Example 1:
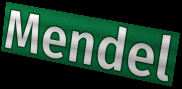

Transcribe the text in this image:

Mendel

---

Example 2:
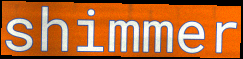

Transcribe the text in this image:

shimmer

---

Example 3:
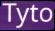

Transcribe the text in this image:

Tyto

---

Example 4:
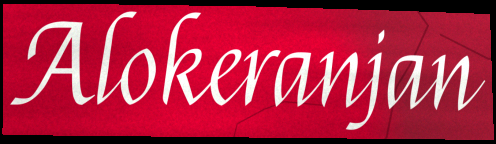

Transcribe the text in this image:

Alokeranjan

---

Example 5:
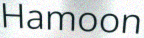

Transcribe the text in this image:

Hamoon